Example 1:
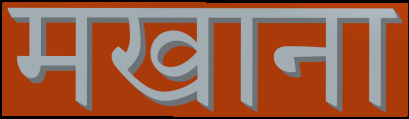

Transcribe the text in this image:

मखाना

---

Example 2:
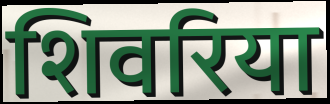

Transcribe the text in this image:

शिवरिया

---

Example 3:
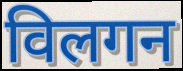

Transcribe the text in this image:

विलगन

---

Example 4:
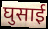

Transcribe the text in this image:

घुसाई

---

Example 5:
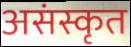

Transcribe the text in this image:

असंस्कृत